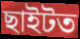
ছাইটত